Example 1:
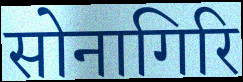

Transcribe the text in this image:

सोनागिरि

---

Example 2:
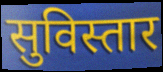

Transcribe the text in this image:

सुविस्तार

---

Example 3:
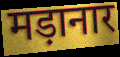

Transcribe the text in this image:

मड़ानार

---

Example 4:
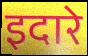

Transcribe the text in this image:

इदारे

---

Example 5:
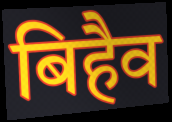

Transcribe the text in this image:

बिहैव